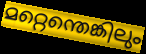
മറ്റെന്തെങ്കിലും